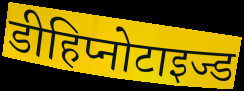
डीहिप्नोटाइज्ड